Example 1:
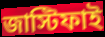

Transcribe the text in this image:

জাস্টিফাই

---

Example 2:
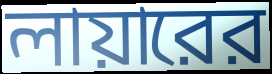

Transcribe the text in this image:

লায়ারের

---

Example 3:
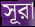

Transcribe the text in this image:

সূরা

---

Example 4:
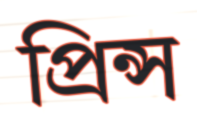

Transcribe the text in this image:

প্রিন্স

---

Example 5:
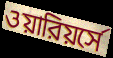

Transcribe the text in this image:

ওয়ারিয়র্সে